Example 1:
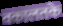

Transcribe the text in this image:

वकालतके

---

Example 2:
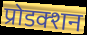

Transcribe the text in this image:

प्रोडक्‍शन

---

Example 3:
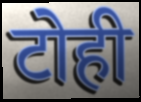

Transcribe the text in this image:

टोही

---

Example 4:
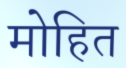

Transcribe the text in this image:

मोहित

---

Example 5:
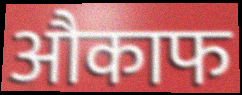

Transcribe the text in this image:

औकाफ